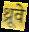
थ्रूवे